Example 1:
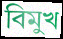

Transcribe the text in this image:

বিমুখ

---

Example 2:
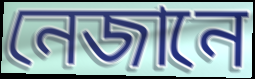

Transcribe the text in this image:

নেজানে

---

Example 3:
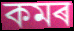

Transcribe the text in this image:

কমৰ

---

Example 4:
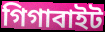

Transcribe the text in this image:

গিগাবাইট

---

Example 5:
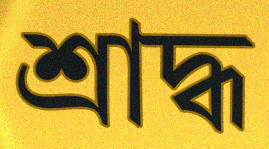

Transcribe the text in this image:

শ্ৰাদ্ধ